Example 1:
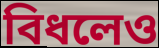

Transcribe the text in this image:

বিধলেও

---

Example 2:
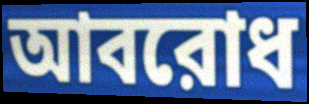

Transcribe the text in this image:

আবরোধ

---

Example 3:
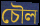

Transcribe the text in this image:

চৌল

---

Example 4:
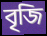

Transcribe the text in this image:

বৃজি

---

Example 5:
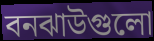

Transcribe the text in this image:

বনঝাউগুলো